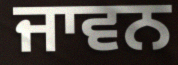
ਜਾਵਨ